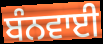
ਬੰਨਵਾਈ